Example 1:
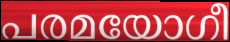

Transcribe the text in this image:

പരമയോഗീ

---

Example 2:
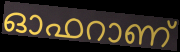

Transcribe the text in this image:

ഓഫറാണ്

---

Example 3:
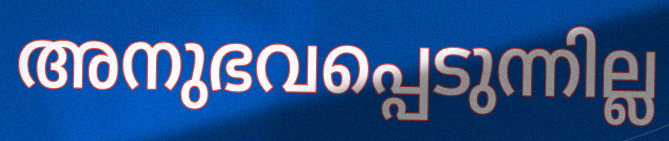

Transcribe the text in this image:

അനുഭവപ്പെടുന്നില്ല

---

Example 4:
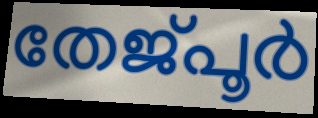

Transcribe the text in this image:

തേജ്പൂർ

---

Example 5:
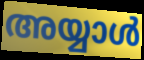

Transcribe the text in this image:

അയ്യാൾ